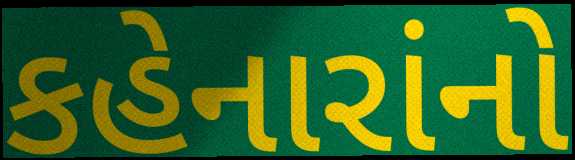
કહેનારાંનો